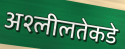
अश्लीलतेकडे